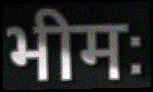
भीमः